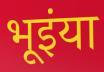
भूइंया